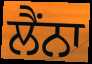
ਲੈਂਨਾ